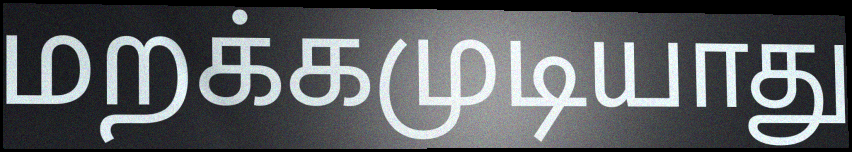
மறக்கமுடியாது